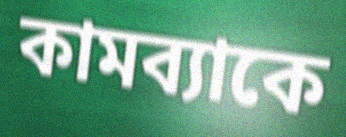
কামব্যাকে